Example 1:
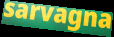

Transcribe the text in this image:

sarvagna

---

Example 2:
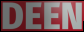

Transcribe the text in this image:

DEEN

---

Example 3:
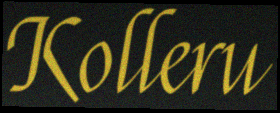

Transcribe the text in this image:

Kolleru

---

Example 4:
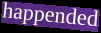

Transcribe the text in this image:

happended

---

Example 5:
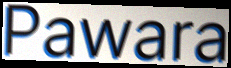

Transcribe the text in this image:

Pawara